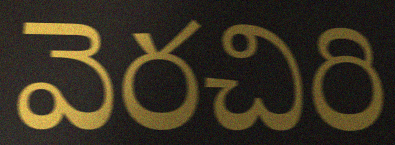
వెరచిరి